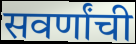
सवर्णांची